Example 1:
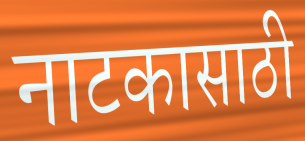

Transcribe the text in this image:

नाटकासाठी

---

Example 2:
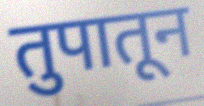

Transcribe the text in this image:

तुपातून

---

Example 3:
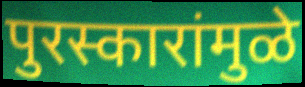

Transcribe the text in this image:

पुरस्कारांमुळे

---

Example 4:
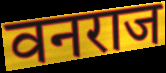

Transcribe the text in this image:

वनराज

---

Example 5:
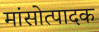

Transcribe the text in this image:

मांसोत्पादक